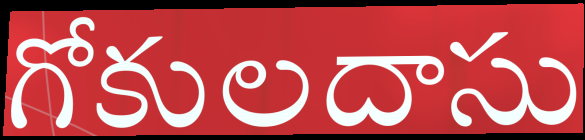
గోకులదాసు